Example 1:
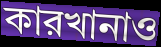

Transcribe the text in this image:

কারখানাও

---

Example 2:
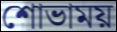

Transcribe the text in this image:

শোভাময়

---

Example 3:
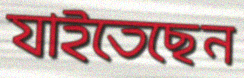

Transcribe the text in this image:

যাইতেছেন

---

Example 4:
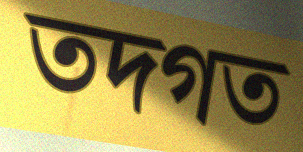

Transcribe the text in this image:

তদগত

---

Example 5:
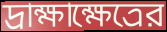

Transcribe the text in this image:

দ্রাক্ষাক্ষেত্রের